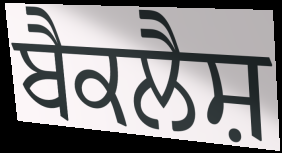
ਬੈਕਲੈਸ਼